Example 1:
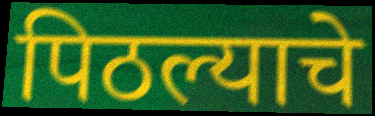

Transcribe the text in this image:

पिठल्याचे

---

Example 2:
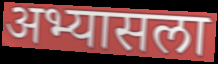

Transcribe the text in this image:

अभ्यासला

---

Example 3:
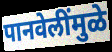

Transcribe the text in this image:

पानवेलींमुळे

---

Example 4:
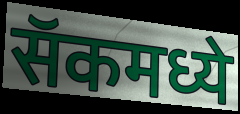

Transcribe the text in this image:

सॅकमध्ये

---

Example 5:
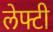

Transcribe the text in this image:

लेफ्टी